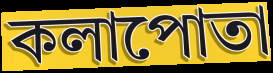
কলাপোতা